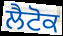
ਲੈਟੋਕ